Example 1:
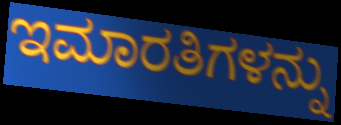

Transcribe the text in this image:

ಇಮಾರತಿಗಳನ್ನು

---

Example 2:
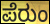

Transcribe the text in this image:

ಪೆರುಂ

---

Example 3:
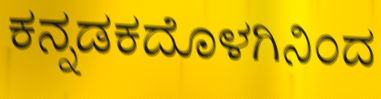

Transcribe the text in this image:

ಕನ್ನಡಕದೊಳಗಿನಿಂದ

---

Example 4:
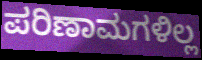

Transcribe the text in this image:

ಪರಿಣಾಮಗಳಿಲ್ಲ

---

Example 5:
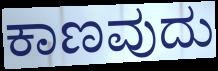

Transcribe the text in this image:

ಕಾಣವುದು